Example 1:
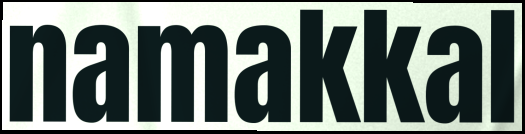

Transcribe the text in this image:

namakkal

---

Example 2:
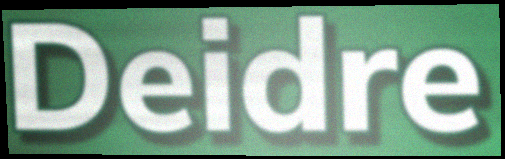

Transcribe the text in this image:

Deidre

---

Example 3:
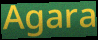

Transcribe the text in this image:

Agara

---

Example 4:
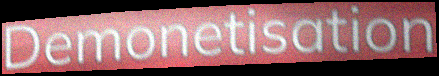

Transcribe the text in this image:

Demonetisation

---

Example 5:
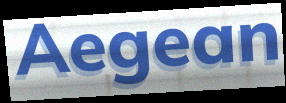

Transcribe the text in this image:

Aegean